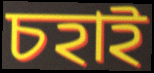
চহাই